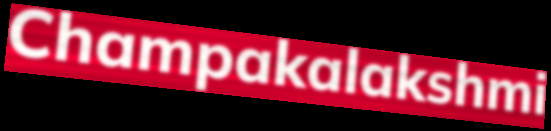
Champakalakshmi